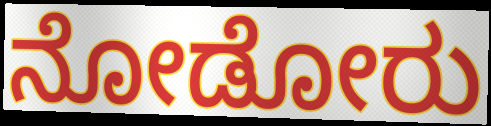
ನೋಡೋರು